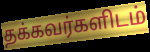
தக்கவர்களிடம்